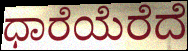
ಧಾರೆಯೆರೆದೆ